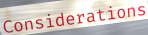
Considerations